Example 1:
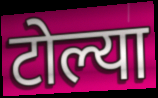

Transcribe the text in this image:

टोल्या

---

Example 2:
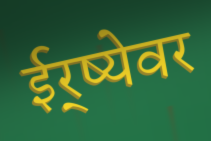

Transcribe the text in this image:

ईर्ष्येवर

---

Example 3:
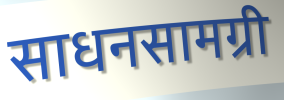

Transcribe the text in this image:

साधनसामग्री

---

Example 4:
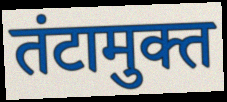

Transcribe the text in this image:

तंटामुक्त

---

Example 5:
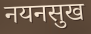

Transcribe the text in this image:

नयनसुख